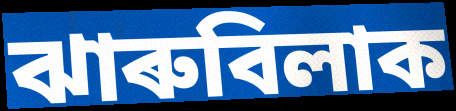
ঝাৰুবিলাক